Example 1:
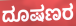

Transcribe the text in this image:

ದೂಷಣರ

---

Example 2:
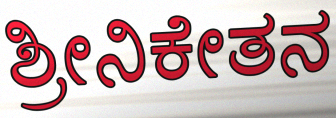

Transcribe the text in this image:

ಶ್ರೀನಿಕೇತನ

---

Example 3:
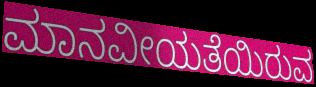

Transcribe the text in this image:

ಮಾನವೀಯತೆಯಿರುವ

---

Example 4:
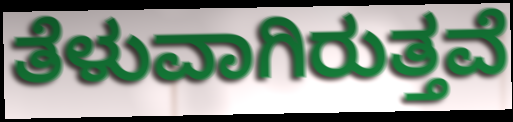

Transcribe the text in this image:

ತೆಳುವಾಗಿರುತ್ತವೆ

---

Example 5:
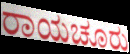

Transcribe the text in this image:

ರಾಯಚೂರು